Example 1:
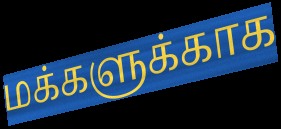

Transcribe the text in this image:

மக்களுக்காக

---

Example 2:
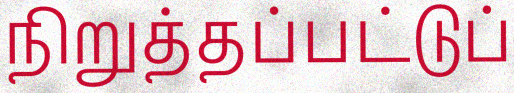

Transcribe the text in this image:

நிறுத்தப்பட்டுப்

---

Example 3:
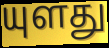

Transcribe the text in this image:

யுளது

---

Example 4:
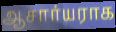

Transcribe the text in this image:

ஆசார்யராக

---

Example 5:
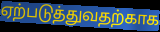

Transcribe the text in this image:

ஏற்படுத்துவதற்காக